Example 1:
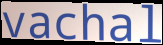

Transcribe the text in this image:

vachal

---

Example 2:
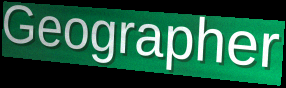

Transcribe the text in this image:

Geographer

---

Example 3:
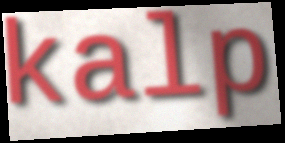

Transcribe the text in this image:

kalp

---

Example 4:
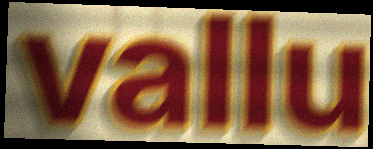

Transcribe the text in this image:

vallu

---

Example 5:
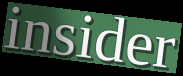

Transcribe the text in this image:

insider